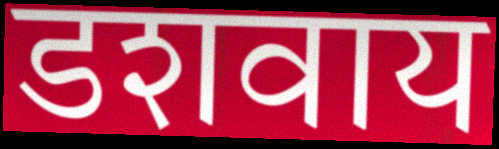
डशवाय